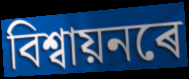
বিশ্বায়নৰে